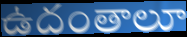
ఉదంతాలూ